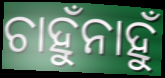
ଚାହୁଁନାହୁଁ